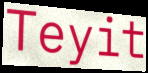
Teyit